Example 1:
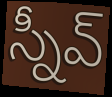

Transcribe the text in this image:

స్నీవ్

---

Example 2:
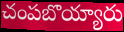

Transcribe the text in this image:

చంపబొయ్యారు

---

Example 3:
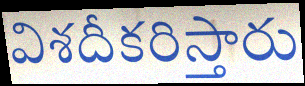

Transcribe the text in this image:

విశదీకరిస్తారు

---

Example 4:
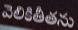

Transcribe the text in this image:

వెలికితీతను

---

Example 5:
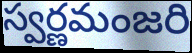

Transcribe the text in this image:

స్వర్ణమంజరి